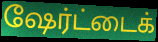
ஷேர்ட்டைக்